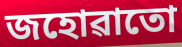
জহোৱাতো